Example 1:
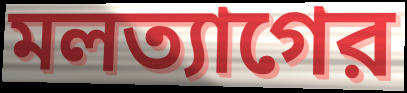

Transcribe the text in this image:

মলত্যাগের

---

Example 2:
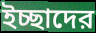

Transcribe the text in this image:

ইচ্ছাদের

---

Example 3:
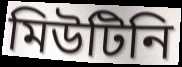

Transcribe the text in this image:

মিউটিনি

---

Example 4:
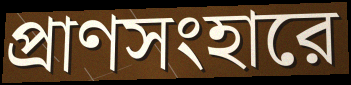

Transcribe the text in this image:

প্রাণসংহারে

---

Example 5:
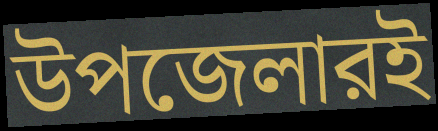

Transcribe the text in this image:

উপজেলারই